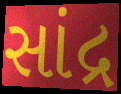
સાંદ્ર